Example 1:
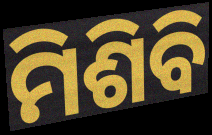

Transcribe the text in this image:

ମିଶିବି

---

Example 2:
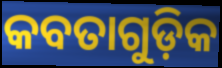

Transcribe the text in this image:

କବତାଗୁଡ଼ିକ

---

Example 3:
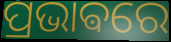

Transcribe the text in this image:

ପ୍ରଭାଵରେ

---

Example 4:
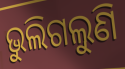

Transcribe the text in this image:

ଭୁଲିଗଲୁଣି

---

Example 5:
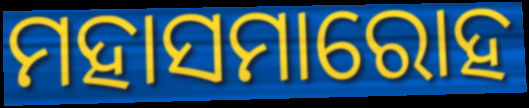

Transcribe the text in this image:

ମହାସମାରୋହ